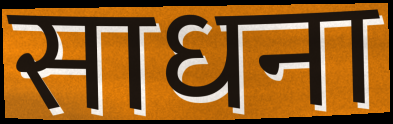
साधना